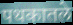
पथकातले